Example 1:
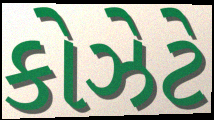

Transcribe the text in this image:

કોઝેટે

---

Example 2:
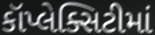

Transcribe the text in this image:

કૉપ્લેક્સિટીમાં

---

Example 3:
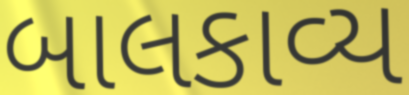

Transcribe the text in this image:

બાલકાવ્ય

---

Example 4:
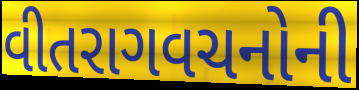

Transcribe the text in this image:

વીતરાગવચનોની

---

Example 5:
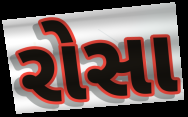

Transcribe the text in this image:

રોસા